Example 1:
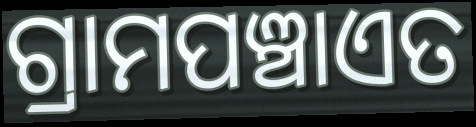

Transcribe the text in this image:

ଗ୍ରାମପଞ୍ଚାଏତ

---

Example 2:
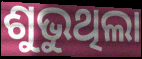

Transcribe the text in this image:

ଶୁଭୁଥିଲା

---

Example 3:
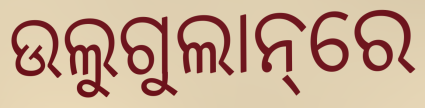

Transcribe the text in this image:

ଉଲୁଗୁଲାନ୍‌ରେ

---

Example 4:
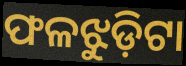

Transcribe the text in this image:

ଫଳଝୁଡ଼ିଟା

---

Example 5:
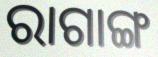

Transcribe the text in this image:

ରାଗାଙ୍ଗ